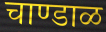
चाण्डाळ